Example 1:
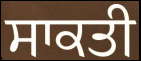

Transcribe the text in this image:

ਸਾਕਤੀ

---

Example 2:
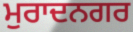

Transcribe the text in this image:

ਮੁਰਾਦਨਗਰ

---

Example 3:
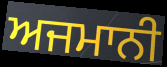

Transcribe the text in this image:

ਅਜਮਾਨੀ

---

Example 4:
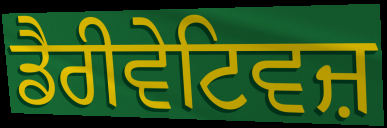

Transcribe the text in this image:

ਡੈਰੀਵੇਟਿਵਜ਼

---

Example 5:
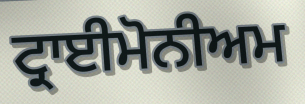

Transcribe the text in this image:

ਟ੍ਰਾਈਮੋਨੀਅਮ